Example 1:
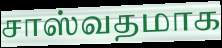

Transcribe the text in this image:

சாஸ்வதமாக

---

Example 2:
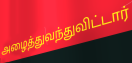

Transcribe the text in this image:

அழைத்துவந்துவிட்டார்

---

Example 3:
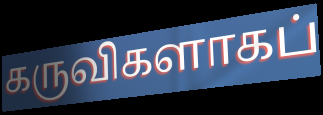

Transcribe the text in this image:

கருவிகளாகப்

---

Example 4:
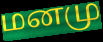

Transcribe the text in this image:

மனமு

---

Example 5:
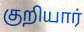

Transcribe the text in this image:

குறியார்